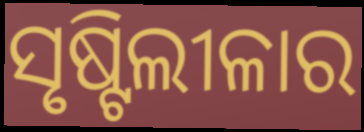
ସୃଷ୍ଟିଲୀଳାର